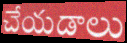
చేయడాలు